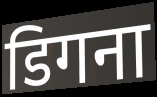
डिगना